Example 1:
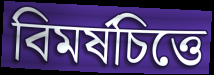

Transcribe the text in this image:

বিমর্ষচিত্তে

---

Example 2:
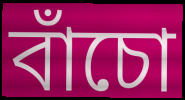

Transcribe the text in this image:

বাঁচো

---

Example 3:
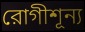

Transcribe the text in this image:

রোগীশূন্য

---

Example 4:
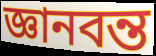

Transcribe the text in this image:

জ্ঞানবন্ত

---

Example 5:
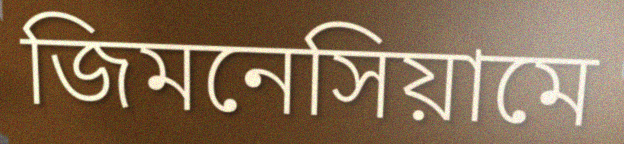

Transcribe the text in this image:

জিমনেসিয়ামে